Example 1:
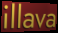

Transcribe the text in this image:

illava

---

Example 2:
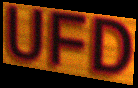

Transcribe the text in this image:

UFD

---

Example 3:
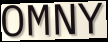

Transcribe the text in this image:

OMNY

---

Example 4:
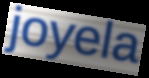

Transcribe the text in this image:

joyela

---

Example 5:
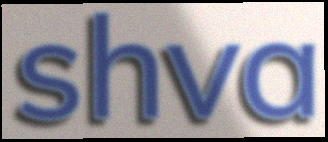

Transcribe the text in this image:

shva